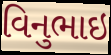
વિનુભાઇ